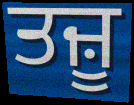
ਤਜ਼ੂ